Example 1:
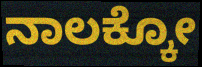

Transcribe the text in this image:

ನಾಲಕ್ಕೋ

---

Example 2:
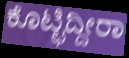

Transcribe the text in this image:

ಕೊಟ್ಟಿದ್ದೀರಾ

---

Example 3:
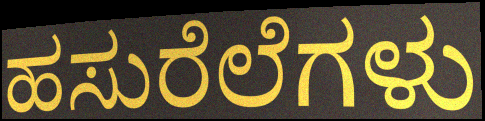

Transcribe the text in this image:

ಹಸುರೆಲೆಗಳು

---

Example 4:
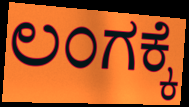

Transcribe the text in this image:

ಲಂಗಕ್ಕೆ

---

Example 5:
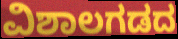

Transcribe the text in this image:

ವಿಶಾಲಗಡದ